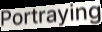
Portraying